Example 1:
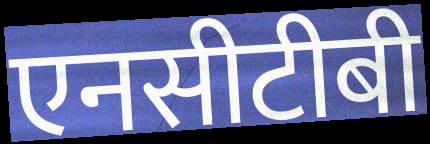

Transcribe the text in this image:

एनसीटीबी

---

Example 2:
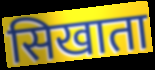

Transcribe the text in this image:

सिखाता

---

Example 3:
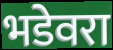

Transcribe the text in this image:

भडेवरा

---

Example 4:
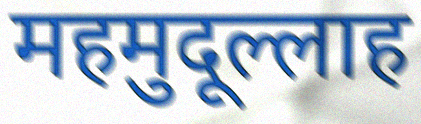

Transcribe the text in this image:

महमुदूल्लाह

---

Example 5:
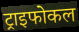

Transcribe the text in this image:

ट्राइफोकल